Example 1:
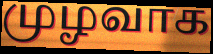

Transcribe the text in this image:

முழவாக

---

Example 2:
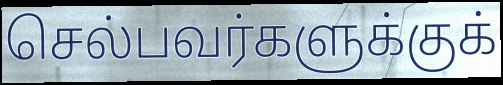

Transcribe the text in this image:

செல்பவர்களுக்குக்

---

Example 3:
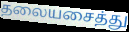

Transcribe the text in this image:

தலையசைத்து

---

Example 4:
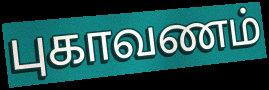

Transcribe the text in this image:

புகாவணம்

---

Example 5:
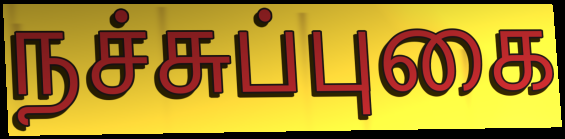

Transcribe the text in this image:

நச்சுப்புகை